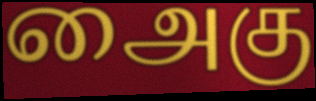
அைகு